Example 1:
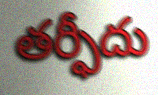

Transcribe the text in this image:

తర్ఫీదు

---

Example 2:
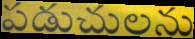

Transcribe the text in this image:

పడుచులను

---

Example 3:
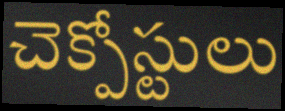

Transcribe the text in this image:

చెక్పోస్టులు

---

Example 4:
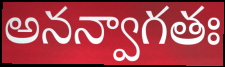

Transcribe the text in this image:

అనన్వాగతః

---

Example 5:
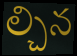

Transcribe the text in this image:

ల్చిన